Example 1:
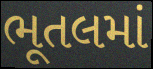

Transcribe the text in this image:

ભૂતલમાં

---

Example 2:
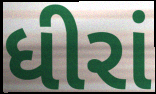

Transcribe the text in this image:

ધીરાં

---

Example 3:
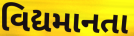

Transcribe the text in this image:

વિદ્યમાનતા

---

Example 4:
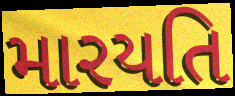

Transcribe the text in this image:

મારયતિ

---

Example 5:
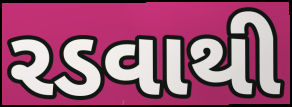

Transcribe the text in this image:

રડવાથી